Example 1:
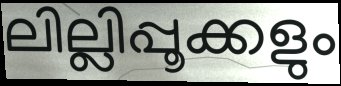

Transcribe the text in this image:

ലില്ലിപ്പൂക്കളും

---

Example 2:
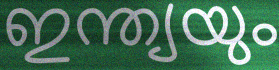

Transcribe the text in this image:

ഇന്ത്യയും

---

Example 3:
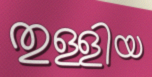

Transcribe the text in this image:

തുള്ളിയ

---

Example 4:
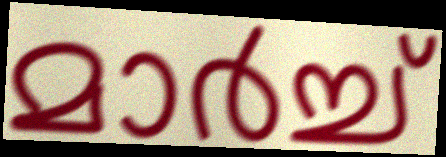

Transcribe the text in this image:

മാർച്ച്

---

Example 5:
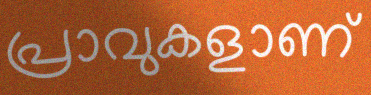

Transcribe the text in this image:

പ്രാവുകളാണ്